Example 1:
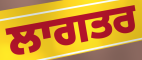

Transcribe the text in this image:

ਲਾਗਤਰ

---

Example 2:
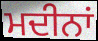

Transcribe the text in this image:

ਮਦੀਨਾਂ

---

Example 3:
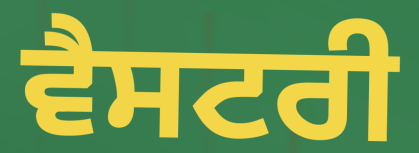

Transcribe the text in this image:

ਵੈਸਟਰੀ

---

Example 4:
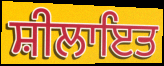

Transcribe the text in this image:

ਸ਼ੀਲਾਇਤ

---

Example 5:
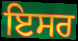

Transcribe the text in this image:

ਇਸਰ